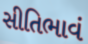
સીતિભાવં